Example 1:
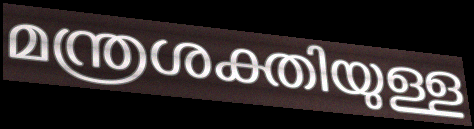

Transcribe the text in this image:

മന്ത്രശക്തിയുള്ള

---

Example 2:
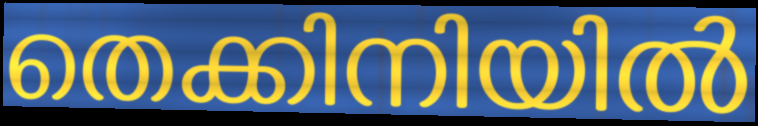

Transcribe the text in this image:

തെക്കിനിയിൽ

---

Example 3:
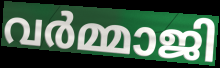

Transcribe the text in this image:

വർമ്മാജി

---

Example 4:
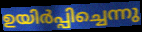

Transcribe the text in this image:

ഉയിർപ്പിച്ചെന്നു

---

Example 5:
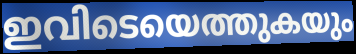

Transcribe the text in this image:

ഇവിടെയെത്തുകയും